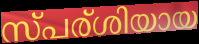
സ്പര്ശിയായ